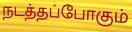
நடத்தப்போகும்